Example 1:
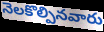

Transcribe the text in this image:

నెలకొల్పినవారు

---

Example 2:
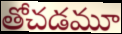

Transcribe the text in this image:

తోచడమూ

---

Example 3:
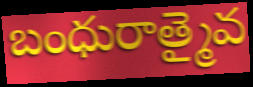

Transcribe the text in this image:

బంధురాత్మైవ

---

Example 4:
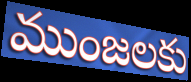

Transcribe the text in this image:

ముంజలకు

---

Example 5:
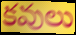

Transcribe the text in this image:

కవులు